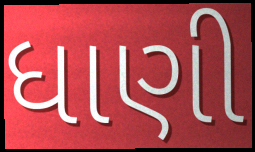
ધાણી